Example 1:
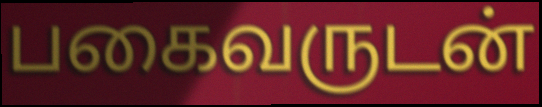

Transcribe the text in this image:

பகைவருடன்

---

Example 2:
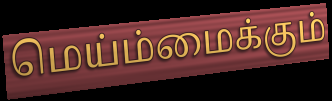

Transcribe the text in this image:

மெய்ம்மைக்கும்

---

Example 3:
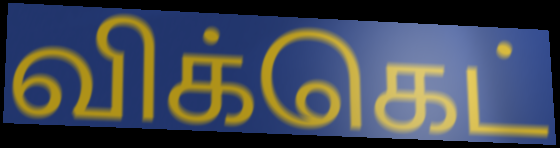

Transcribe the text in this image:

விக்கெட்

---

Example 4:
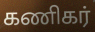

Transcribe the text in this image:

கணிகர்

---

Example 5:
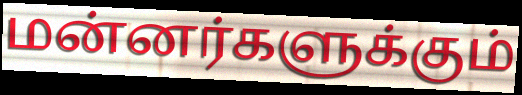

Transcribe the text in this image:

மன்னர்களுக்கும்